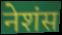
नेशंस